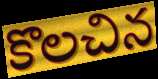
కొలచిన